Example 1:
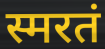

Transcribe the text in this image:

स्मरतं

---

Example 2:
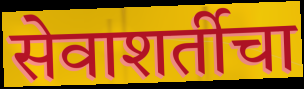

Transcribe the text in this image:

सेवाशर्तीचा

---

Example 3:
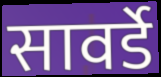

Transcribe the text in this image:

सावर्डे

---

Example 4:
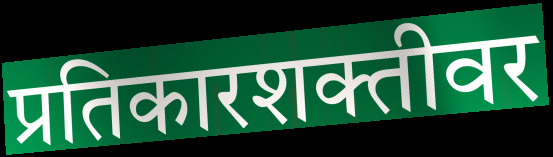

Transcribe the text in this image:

प्रतिकारशक्तीवर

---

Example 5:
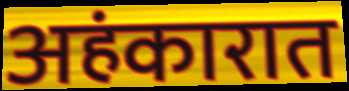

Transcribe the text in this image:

अहंकारात